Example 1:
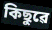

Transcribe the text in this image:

কিছুৱে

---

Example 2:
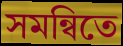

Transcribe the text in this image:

সমন্বিতে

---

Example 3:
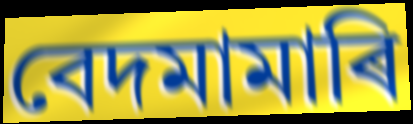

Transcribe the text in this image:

বেদমামাৰি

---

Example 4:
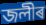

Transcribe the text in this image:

জলীৰ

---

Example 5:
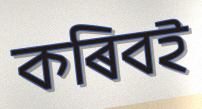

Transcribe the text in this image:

কৰিবই